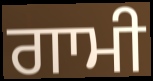
ਗਾਮੀ